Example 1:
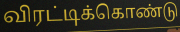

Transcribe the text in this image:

விரட்டிக்கொண்டு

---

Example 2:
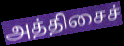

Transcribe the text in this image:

அத்திசைச்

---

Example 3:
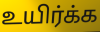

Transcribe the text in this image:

உயிர்க்க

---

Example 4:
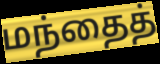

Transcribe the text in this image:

மந்தைத்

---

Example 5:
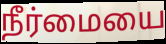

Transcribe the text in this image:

நீர்மையை